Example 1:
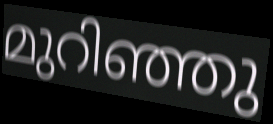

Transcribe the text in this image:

മുറിഞ്ഞു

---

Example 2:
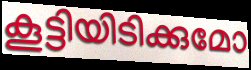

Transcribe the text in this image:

കൂട്ടിയിടിക്കുമോ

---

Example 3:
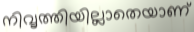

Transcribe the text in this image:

നിവൃത്തിയില്ലാതെയാണ്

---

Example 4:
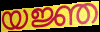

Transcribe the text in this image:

യജ്ഞ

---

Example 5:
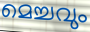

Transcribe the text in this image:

മെച്ചവും